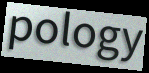
pology